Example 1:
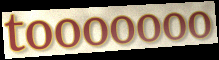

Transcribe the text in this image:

tooooooo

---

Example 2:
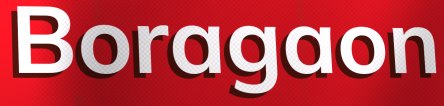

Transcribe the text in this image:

Boragaon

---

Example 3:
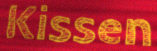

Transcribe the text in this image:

Kissen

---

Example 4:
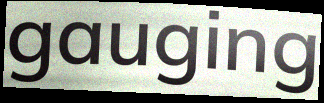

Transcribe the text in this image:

gauging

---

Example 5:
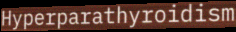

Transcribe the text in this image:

Hyperparathyroidism